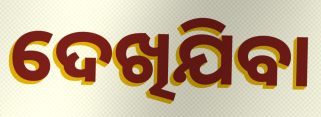
ଦେଖିଯିବା